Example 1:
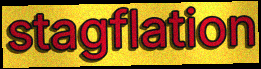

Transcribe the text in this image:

stagflation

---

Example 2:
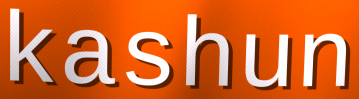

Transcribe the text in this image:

kashun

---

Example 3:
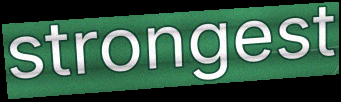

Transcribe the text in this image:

strongest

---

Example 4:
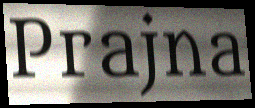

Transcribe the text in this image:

Prajna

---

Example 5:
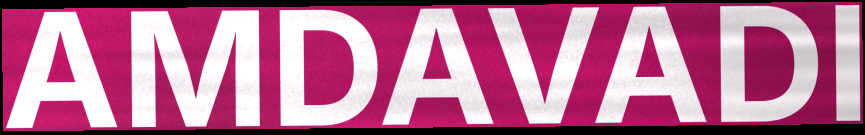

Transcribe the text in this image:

AMDAVADI